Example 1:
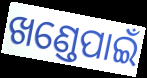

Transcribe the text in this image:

ଖଣ୍ଡେପାଇଁ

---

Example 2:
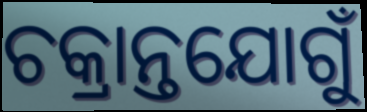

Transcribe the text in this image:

ଚକ୍ରାନ୍ତଯୋଗୁଁ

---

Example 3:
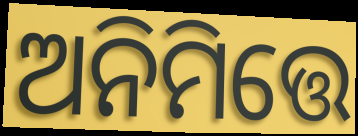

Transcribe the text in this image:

ଅନିମିତ୍ତେ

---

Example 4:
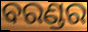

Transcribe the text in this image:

ବରଣ୍ଡର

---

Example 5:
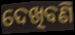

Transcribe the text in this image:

ଦେଖିବଣି